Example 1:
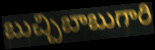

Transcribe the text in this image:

బుచ్చిబాబుగారి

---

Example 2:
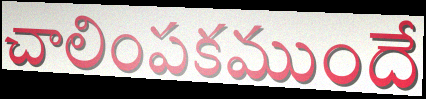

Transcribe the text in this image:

చాలింపకముందే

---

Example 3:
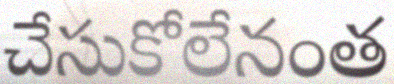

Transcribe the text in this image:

చేసుకోలేనంత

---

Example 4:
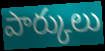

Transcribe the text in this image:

పార్కులు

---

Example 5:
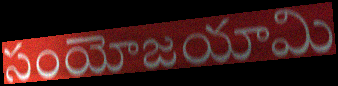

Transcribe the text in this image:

సంయోజయామి